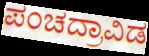
ಪಂಚದ್ರಾವಿಡ